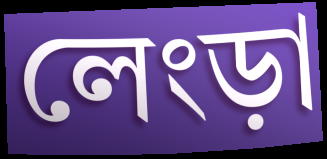
লেংড়া